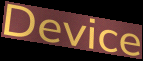
Device